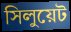
সিলুয়েট